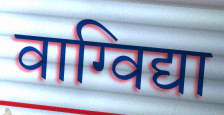
वाग्विद्या